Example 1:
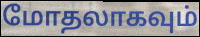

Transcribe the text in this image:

மோதலாகவும்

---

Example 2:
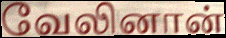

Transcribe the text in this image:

வேலினான்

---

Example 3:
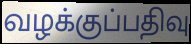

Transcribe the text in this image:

வழக்குப்பதிவு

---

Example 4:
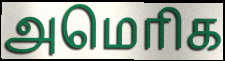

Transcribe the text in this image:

அமெரிக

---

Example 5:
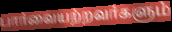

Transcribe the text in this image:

பார்வையற்றவர்களும்